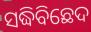
ସଦ୍ଧିବିଛେଦ